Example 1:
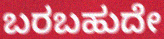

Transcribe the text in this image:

ಬರಬಹುದೇ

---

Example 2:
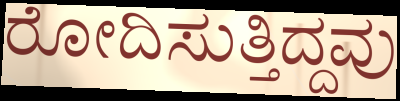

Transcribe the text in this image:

ರೋದಿಸುತ್ತಿದ್ದವು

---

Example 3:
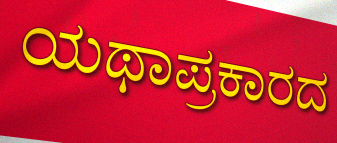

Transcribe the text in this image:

ಯಥಾಪ್ರಕಾರದ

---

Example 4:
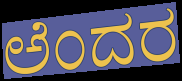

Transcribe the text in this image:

ಅೆಂದರ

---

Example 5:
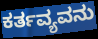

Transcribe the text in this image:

ಕರ್ತವ್ಯವನು